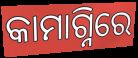
କାମାଗ୍ନିରେ